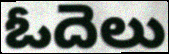
ఓదెలు